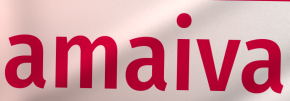
amaiva